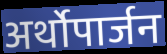
अर्थोपार्जन